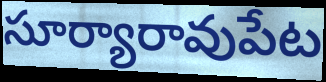
సూర్యారావుపేట